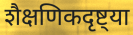
शैक्षणिकदृष्ट्या